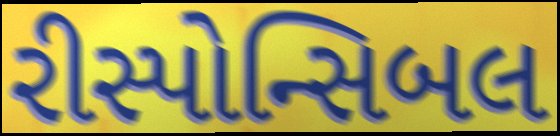
રીસ્પોન્સિબલ